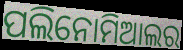
ପଲିନୋମିଆଲର